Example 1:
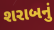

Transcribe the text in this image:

શરાબનું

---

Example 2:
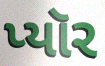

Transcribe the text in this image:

પ્યૉર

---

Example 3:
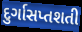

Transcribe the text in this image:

દુર્ગાસપ્તશતી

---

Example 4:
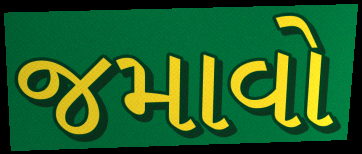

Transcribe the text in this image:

જમાવો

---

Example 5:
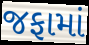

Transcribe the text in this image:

જફામાં